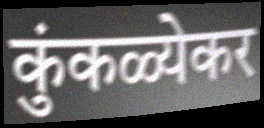
कुंकळ्येकर